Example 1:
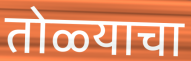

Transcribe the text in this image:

तोळ्याचा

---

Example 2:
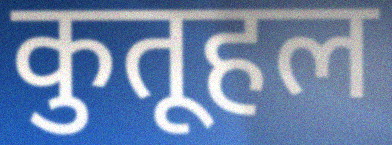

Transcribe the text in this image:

कुतूहल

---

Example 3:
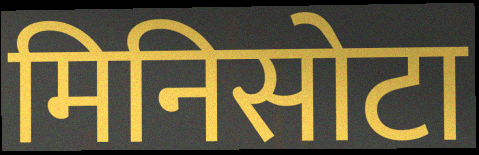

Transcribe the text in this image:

मिनिसोटा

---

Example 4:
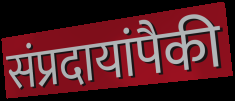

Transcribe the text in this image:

संप्रदायांपैकी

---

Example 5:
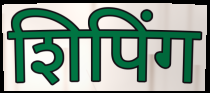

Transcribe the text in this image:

शिपिंग